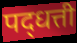
पद्धत्ती